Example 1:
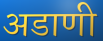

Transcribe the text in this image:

अडाणी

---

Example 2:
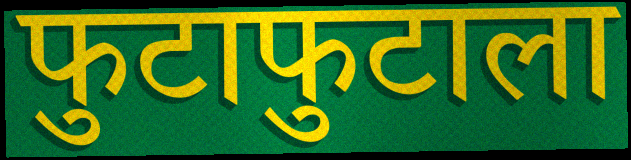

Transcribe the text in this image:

फुटाफुटाला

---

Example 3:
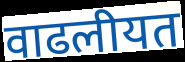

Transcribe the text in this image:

वाढलीयत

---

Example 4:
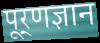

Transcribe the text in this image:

पूर्णज्ञान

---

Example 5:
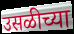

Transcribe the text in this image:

उसळीच्या